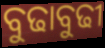
ବୁଢାବୁଢୀ